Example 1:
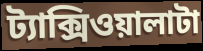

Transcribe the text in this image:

ট্যাক্সিওয়ালাটা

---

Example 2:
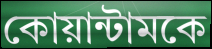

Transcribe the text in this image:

কোয়ান্টামকে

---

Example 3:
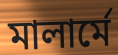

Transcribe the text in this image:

মালার্মে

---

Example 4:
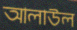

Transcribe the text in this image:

আলাউল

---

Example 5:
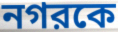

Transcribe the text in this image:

নগরকে